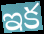
ఇక